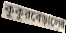
কুকুরবেড়ালের